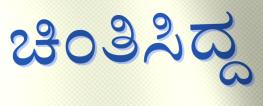
ಚಿಂತಿಸಿದ್ದ